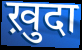
ख़ुदा